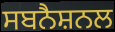
ਸਬਨੈਸ਼ਨਲ